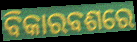
ବିକାରବଶରେ